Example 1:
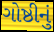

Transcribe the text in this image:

ગોષ્ઠીનું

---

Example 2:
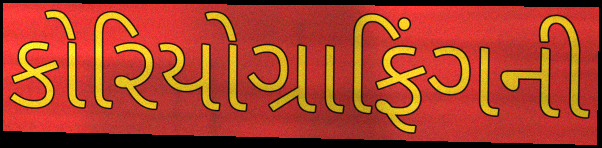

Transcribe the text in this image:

કોરિયોગ્રાફિંગની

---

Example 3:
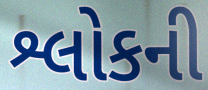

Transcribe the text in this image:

શ્લોકની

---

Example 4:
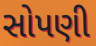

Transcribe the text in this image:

સોપણી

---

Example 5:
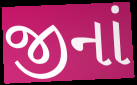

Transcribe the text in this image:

જીનાં